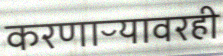
करणाऱ्यावरही